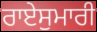
ਰਾਏਸੁਮਾਰੀ